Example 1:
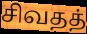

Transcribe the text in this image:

சிவதத்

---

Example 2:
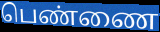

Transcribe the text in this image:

பெண்ணை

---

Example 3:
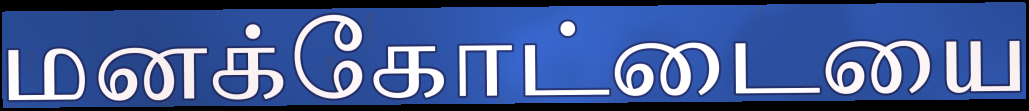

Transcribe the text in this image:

மனக்கோட்டையை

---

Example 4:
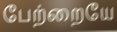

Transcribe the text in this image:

பேற்றையே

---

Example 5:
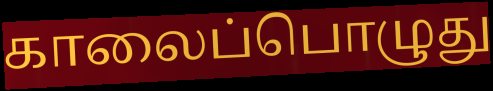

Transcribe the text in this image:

காலைப்பொழுது